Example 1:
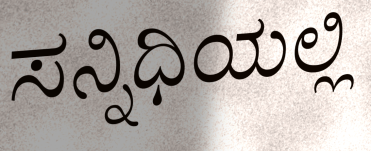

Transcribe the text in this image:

ಸನ್ನಿಧಿಯಲ್ಲಿ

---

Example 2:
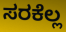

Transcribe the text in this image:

ಸರಕೆಲ್ಲ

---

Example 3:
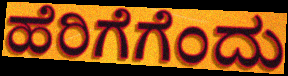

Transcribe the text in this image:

ಹೆರಿಗೆಗೆಂದು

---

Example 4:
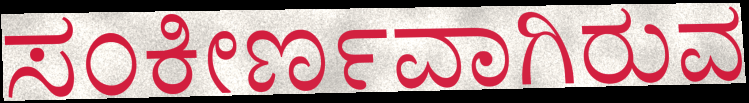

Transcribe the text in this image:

ಸಂಕೀರ್ಣವಾಗಿರುವ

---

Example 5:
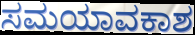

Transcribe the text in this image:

ಸಮಯಾವಕಾಶ